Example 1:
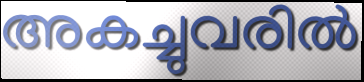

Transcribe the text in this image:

അകച്ചുവരിൽ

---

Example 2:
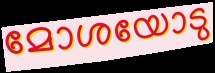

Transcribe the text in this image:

മോശയോടു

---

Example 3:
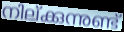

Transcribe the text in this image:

നില്ക്കുന്നുണ്ട്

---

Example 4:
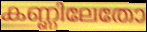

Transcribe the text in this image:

കണ്ണിലേതോ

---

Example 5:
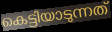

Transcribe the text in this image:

കെട്ടിയാടുന്നത്